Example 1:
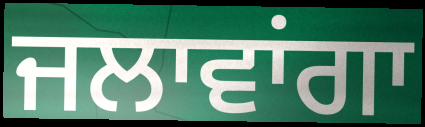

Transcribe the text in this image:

ਜਲਾਵਾਂਗਾ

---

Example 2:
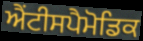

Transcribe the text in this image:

ਐਂਟੀਸਪੈਮੋਡਿਕ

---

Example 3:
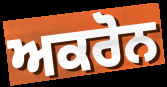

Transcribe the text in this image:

ਅਕਰੋਨ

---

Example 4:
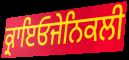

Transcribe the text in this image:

ਕ੍ਰਾਇਓਜੇਨਿਕਲੀ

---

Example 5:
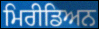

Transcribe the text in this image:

ਮਿਰੀਡਿਅਨ